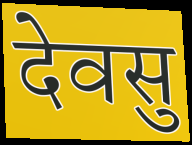
देवसु